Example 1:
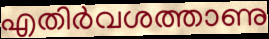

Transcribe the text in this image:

എതിർവശത്താണു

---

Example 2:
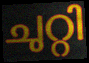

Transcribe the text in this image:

ചുറ്റി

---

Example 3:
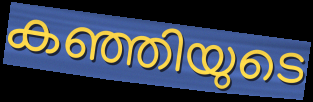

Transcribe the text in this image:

കഞ്ഞിയുടെ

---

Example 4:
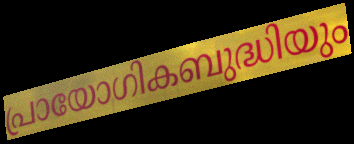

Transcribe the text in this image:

പ്രായോഗികബുദ്ധിയും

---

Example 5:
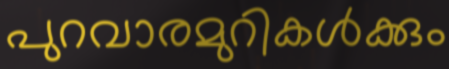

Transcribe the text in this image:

പുറവാരമുറികൾക്കും